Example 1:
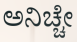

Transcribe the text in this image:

ಅನಿಚ್ಚೇ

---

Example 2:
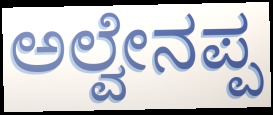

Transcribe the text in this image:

ಅಲ್ವೇನಪ್ಪ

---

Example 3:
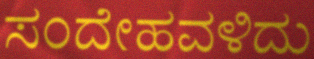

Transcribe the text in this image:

ಸಂದೇಹವಳಿದು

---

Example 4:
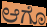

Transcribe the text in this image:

ಆಗೊ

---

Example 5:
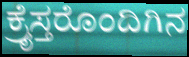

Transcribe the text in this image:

ಕ್ರೈಸ್ತರೊಂದಿಗಿನ